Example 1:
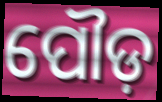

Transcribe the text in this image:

ପୌଡ଼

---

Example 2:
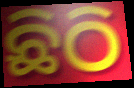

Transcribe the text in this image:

ଛିଠି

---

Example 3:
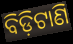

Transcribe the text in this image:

ବିଡ଼ିଟାଣି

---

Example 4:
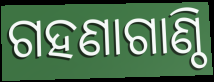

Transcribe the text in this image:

ଗହଣାଗାଣ୍ଠି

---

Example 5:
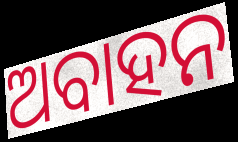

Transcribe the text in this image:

ଅବାହନ